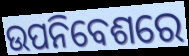
ଉପନିବେଶରେ